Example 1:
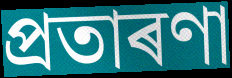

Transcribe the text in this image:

প্ৰতাৰণা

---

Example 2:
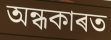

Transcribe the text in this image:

অন্ধকাৰত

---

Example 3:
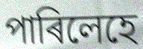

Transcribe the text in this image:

পাৰিলেহে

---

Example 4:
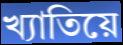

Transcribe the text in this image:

খ্যাতিয়ে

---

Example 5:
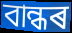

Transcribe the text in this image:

বান্ধৰ